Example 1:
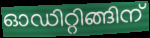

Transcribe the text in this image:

ഓഡിറ്റിങ്ങിന്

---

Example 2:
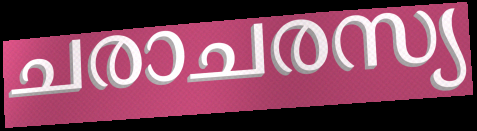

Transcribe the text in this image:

ചരാചരസ്യ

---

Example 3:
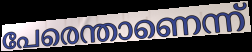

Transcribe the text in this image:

പേരെന്താണെന്ന്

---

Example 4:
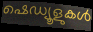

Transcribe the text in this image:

ഷെഡ്യൂളുകൾ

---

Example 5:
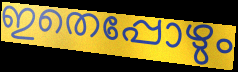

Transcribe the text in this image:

ഇതെപ്പോഴും